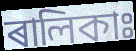
ৰালিকাঃ